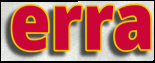
erra